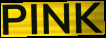
PINK